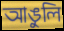
আঙুলি